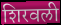
शिरवली